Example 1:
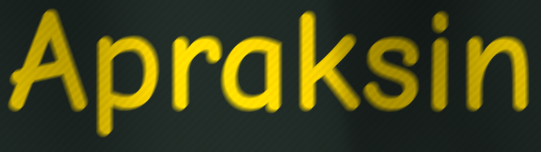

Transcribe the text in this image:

Apraksin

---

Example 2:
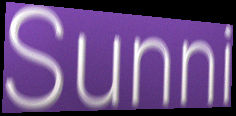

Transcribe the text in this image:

Sunni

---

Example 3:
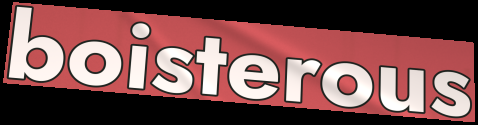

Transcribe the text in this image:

boisterous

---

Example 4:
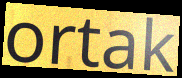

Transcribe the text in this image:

ortak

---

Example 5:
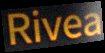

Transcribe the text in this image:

Rivea